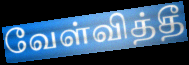
வேள்வித்தீ